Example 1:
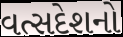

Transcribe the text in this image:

વત્સદેશનો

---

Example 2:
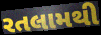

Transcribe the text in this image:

રતલામથી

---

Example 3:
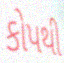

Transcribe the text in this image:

કોપથી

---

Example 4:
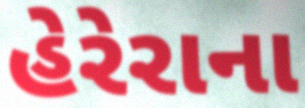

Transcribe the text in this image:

હેરેરાના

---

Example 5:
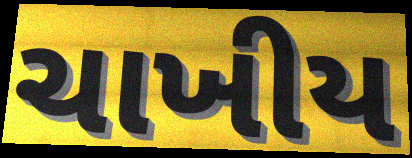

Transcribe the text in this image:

ચાખીય